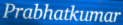
Prabhatkumar